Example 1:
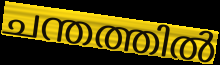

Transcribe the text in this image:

ചന്തത്തിൽ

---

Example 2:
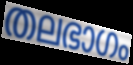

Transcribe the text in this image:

തലഭാഗം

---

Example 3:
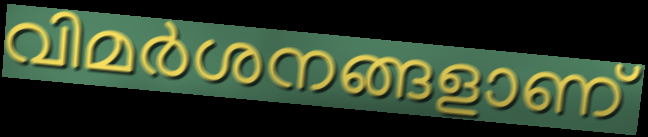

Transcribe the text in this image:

വിമർശനങ്ങളാണ്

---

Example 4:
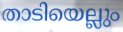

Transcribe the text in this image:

താടിയെല്ലും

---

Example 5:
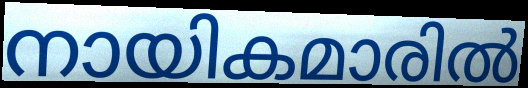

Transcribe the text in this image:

നായികമാരിൽ